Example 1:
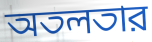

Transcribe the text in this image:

অতলতার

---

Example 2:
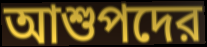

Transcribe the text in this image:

আশুপদের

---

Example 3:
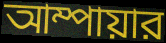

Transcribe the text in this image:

আম্পায়ার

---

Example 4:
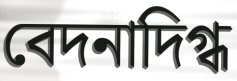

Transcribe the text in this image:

বেদনাদিগ্ধ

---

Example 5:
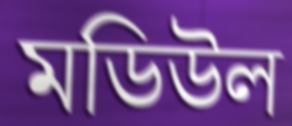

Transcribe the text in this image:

মডিউল